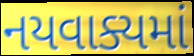
નયવાક્યમાં